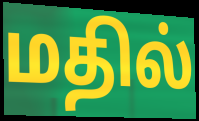
மதில்